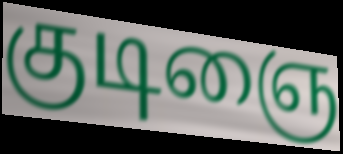
குடிஞை